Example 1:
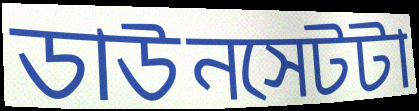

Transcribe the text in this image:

ডাউনসেটটা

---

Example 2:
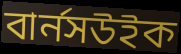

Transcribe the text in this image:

বার্নসউইক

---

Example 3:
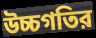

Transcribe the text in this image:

উচ্চগতির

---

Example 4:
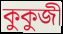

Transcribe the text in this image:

কুকুজী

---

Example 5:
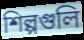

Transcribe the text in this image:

শিল্পগুলি